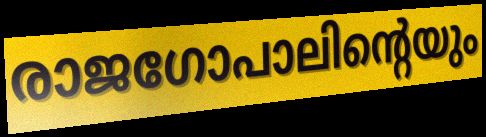
രാജഗോപാലിന്റെയും